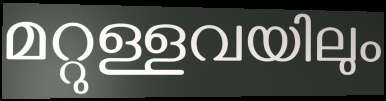
മറ്റുള്ളവയിലും